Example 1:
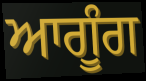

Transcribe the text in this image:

ਆਗੂੰਗ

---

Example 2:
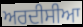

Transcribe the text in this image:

ਅਰਦੀਸੀਆ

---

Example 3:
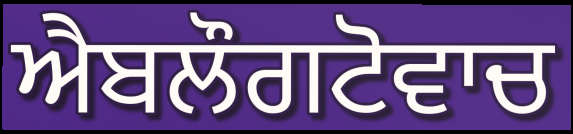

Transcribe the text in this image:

ਐਬਲੌਗਟੋਵਾਚ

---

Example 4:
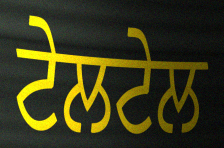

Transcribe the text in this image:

ਟੇਲਟੇਲ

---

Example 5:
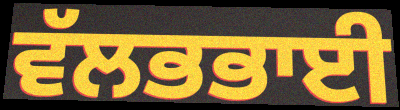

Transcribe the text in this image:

ਵੱਲਭਭਾਈ